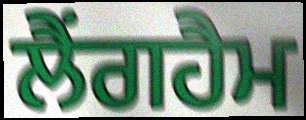
ਲੈਂਗਹੈਮ